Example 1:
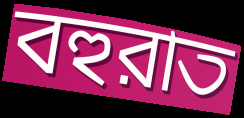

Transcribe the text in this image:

বহুরাত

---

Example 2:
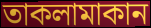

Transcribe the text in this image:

তাকলামাকান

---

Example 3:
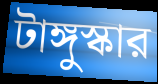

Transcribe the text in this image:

টাঙ্গুস্কার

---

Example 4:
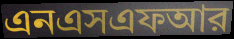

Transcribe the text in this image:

এনএসএফআর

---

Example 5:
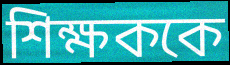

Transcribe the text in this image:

শিক্ষককে